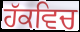
ਹੱਕਵਿਚ